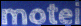
motei